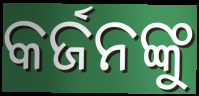
କର୍ଜନଙ୍କୁ